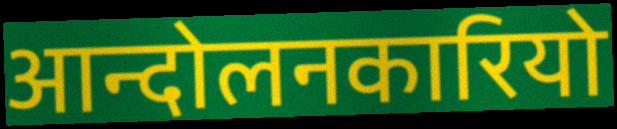
आन्दोलनकारियो